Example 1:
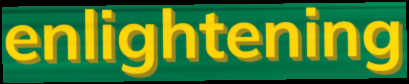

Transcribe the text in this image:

enlightening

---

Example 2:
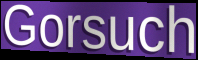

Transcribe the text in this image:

Gorsuch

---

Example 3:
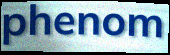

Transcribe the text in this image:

phenom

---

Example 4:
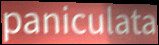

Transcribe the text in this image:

paniculata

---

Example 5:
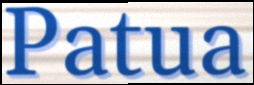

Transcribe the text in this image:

Patua